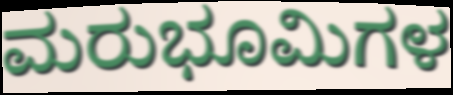
ಮರುಭೂಮಿಗಳ